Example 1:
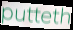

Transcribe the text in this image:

putteth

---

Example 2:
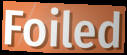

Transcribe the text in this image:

Foiled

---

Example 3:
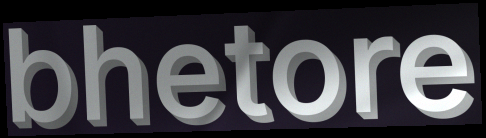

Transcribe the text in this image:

bhetore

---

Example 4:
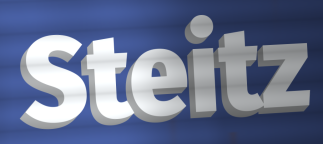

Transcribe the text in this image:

Steitz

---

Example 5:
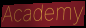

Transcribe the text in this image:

Academy